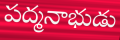
పద్మనాభుడు